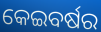
କେଇବର୍ଷର